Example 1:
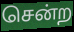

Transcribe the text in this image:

சென்ற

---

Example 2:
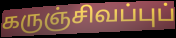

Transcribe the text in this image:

கருஞ்சிவப்புப்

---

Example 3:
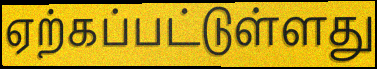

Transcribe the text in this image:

ஏற்கப்பட்டுள்ளது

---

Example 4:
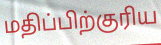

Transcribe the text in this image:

மதிப்பிற்குரிய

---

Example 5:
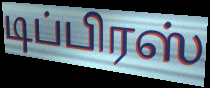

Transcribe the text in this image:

டிப்பிரஸ்